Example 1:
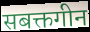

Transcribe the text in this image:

सबक्तगीन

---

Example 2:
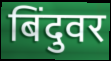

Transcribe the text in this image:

बिंदुवर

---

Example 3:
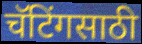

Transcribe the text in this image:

चॅटिंगसाठी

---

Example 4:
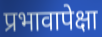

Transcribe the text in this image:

प्रभावापेक्षा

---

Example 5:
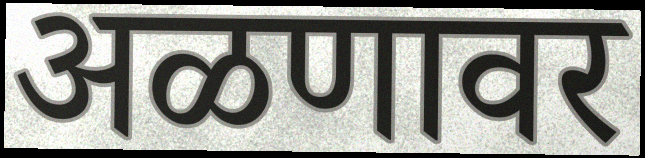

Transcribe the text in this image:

अळणावर